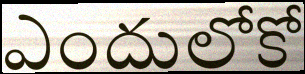
ఎందులోకో